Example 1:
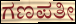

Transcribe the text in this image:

ಗಣಪತೀ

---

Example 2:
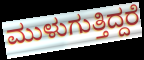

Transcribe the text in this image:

ಮುಳುಗುತ್ತಿದ್ದರೆ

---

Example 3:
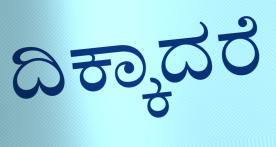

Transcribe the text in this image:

ದಿಕ್ಕಾದರೆ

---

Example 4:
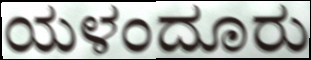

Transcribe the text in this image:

ಯಳಂದೂರು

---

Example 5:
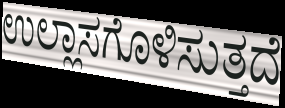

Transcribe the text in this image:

ಉಲ್ಲಾಸಗೊಳಿಸುತ್ತದೆ